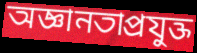
অজ্ঞানতাপ্রযুক্ত